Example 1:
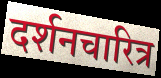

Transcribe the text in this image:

दर्शनचारित्र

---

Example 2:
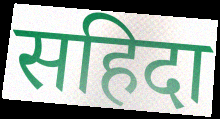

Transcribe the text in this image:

सहिदा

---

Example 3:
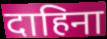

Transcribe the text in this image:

दाहिना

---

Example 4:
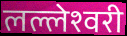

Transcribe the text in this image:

लल्लेश्वरी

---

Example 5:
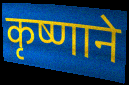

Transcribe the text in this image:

कृष्णाने